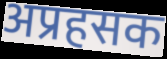
अप्रहसक